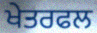
ਖੇਤਰਫਲ